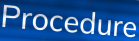
Procedure